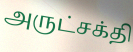
அருட்சக்தி